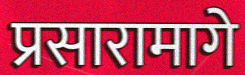
प्रसारामागे